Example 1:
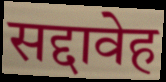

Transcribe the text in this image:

सद्दावेह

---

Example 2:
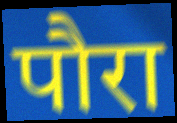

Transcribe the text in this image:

पौरा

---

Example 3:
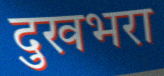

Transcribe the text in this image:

दुखभरा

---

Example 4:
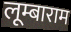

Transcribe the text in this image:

लूम्बाराम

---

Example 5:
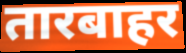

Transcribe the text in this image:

तारबाहर